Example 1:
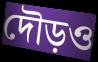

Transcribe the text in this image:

দৌড়ও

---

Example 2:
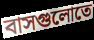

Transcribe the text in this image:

বাসগুলোতে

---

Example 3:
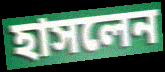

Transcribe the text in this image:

হাসলেন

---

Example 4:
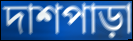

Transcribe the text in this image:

দাশপাড়া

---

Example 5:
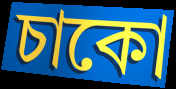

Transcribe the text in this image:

চাকো